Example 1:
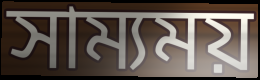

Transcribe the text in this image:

সাম্যময়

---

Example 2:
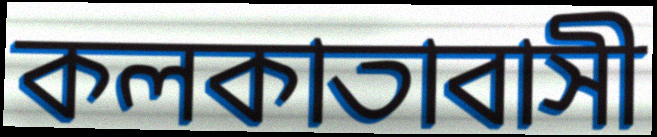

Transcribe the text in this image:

কলকাতাবাসী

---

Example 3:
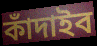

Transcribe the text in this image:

কাঁদাইব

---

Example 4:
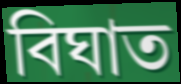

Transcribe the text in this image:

বিঘাত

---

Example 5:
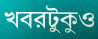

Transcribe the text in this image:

খবরটুকুও